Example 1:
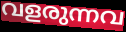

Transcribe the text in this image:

വളരുന്നവ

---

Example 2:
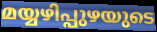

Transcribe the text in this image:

മയ്യഴിപ്പുഴയുടെ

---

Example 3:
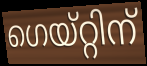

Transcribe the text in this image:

ഗെയ്റ്റിന്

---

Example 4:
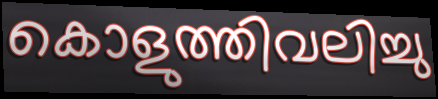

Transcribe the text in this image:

കൊളുത്തിവലിച്ചു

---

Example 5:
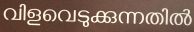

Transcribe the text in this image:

വിളവെടുക്കുന്നതിൽ